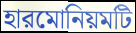
হারমোনিয়মটি